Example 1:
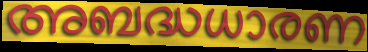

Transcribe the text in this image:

അബദ്ധധാരണ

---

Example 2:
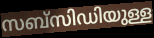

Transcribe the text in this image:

സബ്സിഡിയുള്ള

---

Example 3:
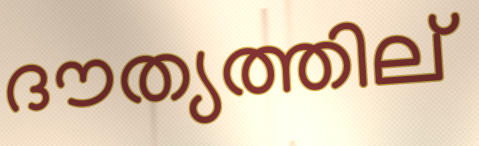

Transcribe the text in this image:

ദൗത്യത്തില്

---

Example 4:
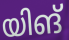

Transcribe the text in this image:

യിങ്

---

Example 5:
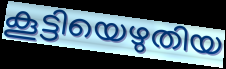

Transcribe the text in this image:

കൂട്ടിയെഴുതിയ